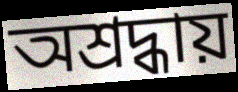
অশ্রদ্ধায়